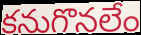
కనుగొనలేం